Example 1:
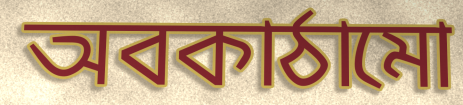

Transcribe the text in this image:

অবকাঠামো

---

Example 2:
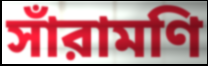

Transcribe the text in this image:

সাঁরামণি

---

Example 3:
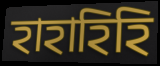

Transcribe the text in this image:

হাহাহিহি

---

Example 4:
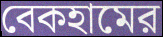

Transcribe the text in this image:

বেকহামের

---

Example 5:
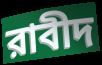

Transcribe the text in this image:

রাবীদ